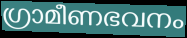
ഗ്രാമീണഭവനം